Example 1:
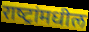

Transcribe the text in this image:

राष्ट्रांमधील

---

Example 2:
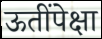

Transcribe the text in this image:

ऊतींपेक्षा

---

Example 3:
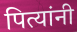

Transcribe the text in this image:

पित्यांनी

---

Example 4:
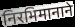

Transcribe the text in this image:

निरभिमानाने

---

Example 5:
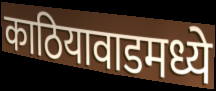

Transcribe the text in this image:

काठियावाडमध्ये